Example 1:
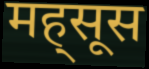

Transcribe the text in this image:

मह्सूस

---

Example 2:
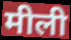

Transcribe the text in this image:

मीली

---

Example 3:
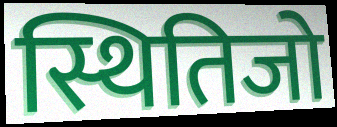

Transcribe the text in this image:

स्थितिजो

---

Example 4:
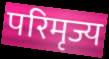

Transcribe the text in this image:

परिमृज्य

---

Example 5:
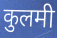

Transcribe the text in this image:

कुलमी